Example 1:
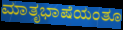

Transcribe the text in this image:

ಮಾತೃಭಾಷೆಯಂತೂ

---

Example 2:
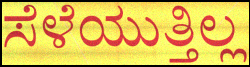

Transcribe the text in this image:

ಸೆಳೆಯುತ್ತಿಲ್ಲ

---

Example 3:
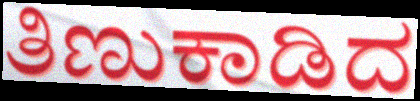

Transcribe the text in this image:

ತಿಣುಕಾಡಿದ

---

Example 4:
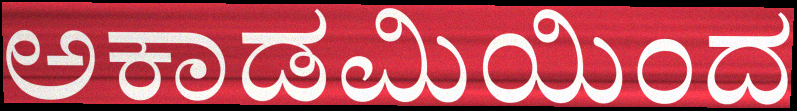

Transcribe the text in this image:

ಅಕಾಡಮಿಯಿಂದ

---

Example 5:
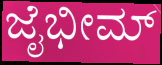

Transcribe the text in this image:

ಜೈಭೀಮ್